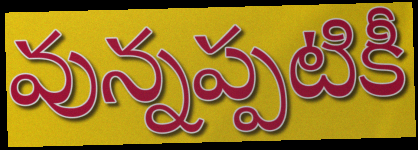
వున్నప్పటికీ